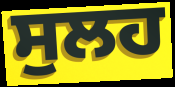
ਸੁਲਹ